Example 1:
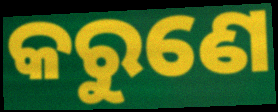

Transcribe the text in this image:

କରୁଣେ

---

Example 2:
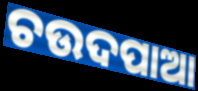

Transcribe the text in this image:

ଚଉଦପାଆ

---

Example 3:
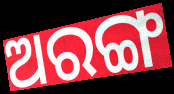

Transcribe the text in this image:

ଅରଙ୍ଗ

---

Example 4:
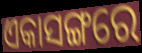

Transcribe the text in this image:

ଏକାସଙ୍ଗରେ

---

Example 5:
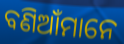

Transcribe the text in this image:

ବଣିଆଁମାନେ